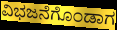
ವಿಭಜನೆಗೊಂಡಾಗ